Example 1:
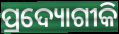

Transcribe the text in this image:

ପ୍ରଦ୍ୟୋଗୀକି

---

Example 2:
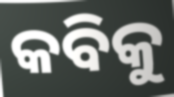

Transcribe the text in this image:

କବିକୁ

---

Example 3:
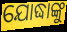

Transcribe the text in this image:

ଯୋଦ୍ଧାଙ୍କୁ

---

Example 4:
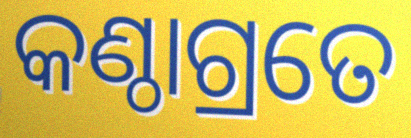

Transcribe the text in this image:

କଣ୍ଠାଗ୍ରତେ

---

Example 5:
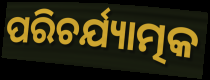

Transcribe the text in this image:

ପରିଚର୍ଯ୍ୟାତ୍ମକ